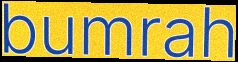
bumrah